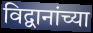
विद्वानांच्या